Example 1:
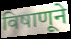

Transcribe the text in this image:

विषाणूने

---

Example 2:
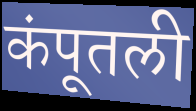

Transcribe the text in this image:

कंपूतली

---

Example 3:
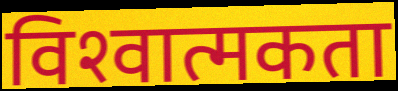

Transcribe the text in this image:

विश्वात्मकता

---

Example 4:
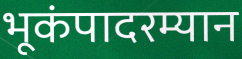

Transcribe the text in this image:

भूकंपादरम्यान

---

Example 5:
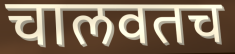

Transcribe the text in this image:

चालवतच